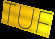
TUF